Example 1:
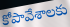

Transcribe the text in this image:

కోపావేశాలకు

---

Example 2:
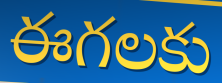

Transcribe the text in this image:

ఈగలకు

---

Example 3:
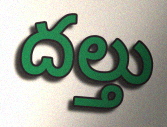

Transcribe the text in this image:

దల్తు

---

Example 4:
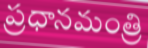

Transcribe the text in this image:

ప్రధానమంత్రి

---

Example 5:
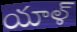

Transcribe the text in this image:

యాళ్